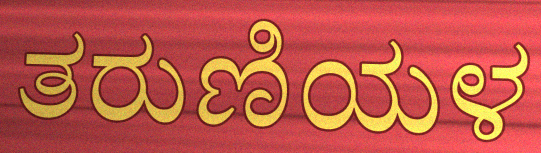
ತರುಣಿಯಳ